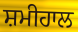
ਸ਼ਮੀਹਾਲ